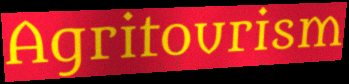
Agritourism